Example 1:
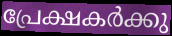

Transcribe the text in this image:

പ്രേക്ഷകർക്കു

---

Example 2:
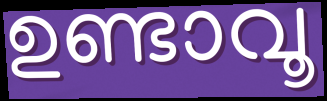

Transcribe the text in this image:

ഉണ്ടാവൂ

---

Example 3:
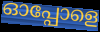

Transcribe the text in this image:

ഓപ്പോളെ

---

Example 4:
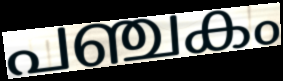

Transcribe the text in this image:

പഞ്ചകം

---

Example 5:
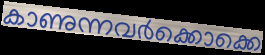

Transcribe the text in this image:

കാണുന്നവർക്കൊക്കെ